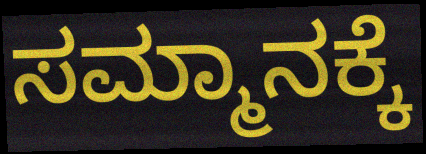
ಸಮ್ಮಾನಕ್ಕೆ